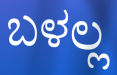
ಬಳಲ್ಲ